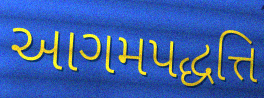
આગમપદ્ધત્તિ